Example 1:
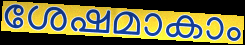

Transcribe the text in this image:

ശേഷമാകാം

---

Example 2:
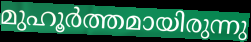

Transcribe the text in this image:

മുഹൂർത്തമായിരുന്നു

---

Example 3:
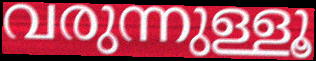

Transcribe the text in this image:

വരുന്നുള്ളൂ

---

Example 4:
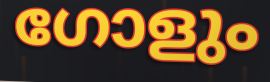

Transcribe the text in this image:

ഗോളും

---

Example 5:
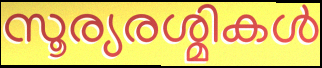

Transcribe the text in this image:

സൂര്യരശ്മികൾ